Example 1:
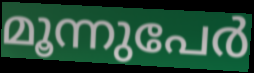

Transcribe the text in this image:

മൂന്നുപേർ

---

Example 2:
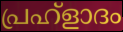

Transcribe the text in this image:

പ്രഹ്ളാദം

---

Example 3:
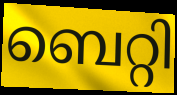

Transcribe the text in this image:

ബെറ്റി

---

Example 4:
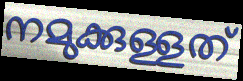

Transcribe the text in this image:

നമുക്കുള്ളത്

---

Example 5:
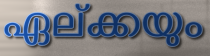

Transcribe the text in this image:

ഏല്ക്കയും